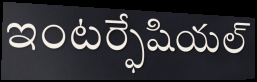
ఇంటర్ఫేషియల్